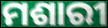
ମଶାରୀ